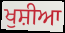
ਖੁਸ਼ੀਆ